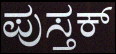
ಪುಸ್ತಕ್